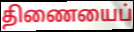
திணையைப்